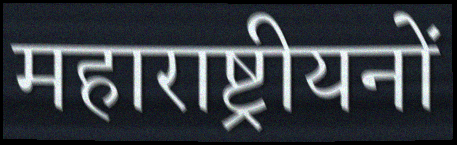
महाराष्ट्रीयनों